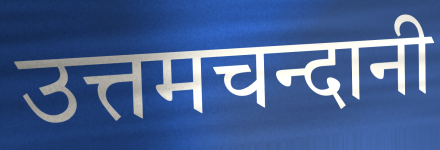
उत्तमचन्दानी